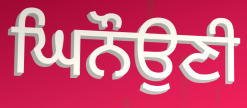
ਘਿਨੌਉਣੀ